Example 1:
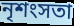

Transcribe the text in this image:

নৃশংসতা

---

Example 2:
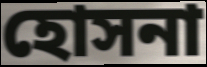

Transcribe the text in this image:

হোসনা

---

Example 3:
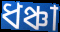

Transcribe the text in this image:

ধঞ্চা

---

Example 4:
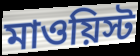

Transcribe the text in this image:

মাওয়িস্ট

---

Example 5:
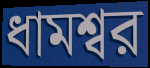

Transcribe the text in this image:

ধামশ্বর